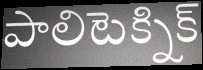
పాలిటెక్నిక్